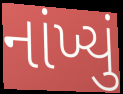
નાંખ્યું